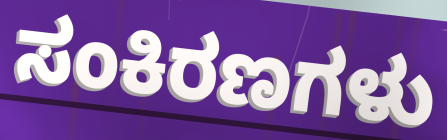
ಸಂಕಿರಣಗಳು